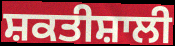
ਸ਼ਕਤੀਸ਼ਾਲੀ